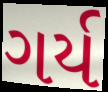
ગર્ય